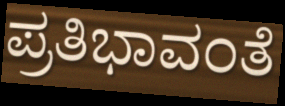
ಪ್ರತಿಭಾವಂತೆ